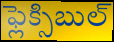
ఫ్లెక్సిబుల్